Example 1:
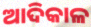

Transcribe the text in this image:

ଆଦିକାଳ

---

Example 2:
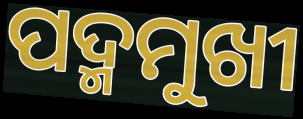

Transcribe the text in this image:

ପଦ୍ମମୁଖୀ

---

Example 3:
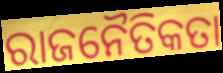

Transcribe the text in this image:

ରାଜନୈତିକତା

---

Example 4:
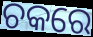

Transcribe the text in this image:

ଚକରେ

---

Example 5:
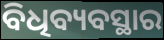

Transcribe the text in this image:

ବିଧିବ୍ୟବସ୍ଥାର